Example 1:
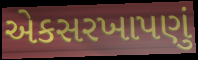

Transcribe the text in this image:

એકસરખાપણું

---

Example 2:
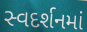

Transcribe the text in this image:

સ્વદર્શનમાં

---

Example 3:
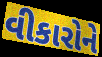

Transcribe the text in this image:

વીકારોને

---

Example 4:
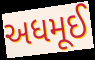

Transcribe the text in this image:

અધમૂઈ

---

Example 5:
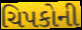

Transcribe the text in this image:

ચિપકોની